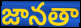
జానతా